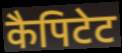
कैपिटेट